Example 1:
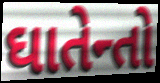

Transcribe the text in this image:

ઘાતેન્તો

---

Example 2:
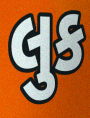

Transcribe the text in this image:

લુક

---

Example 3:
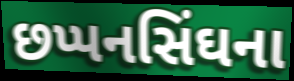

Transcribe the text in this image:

છપ્પનસિંઘના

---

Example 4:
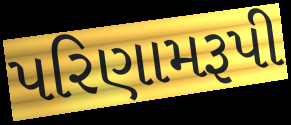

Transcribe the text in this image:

પરિણામરૂપી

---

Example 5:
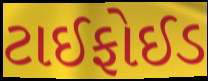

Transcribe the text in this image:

ટાઈફોઈડ